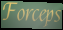
Forceps